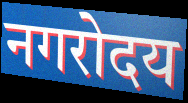
नगरोदय